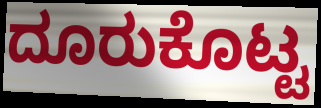
ದೂರುಕೊಟ್ಟ